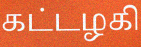
கட்டழகி